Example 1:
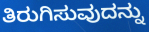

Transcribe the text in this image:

ತಿರುಗಿಸುವುದನ್ನು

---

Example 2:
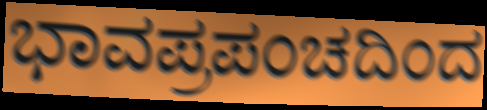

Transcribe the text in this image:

ಭಾವಪ್ರಪಂಚದಿಂದ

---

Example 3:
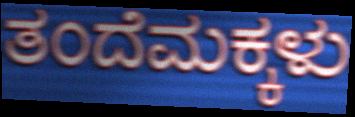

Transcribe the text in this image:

ತಂದೆಮಕ್ಕಳು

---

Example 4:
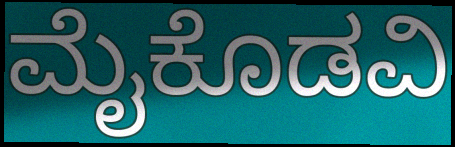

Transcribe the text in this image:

ಮೈಕೊಡವಿ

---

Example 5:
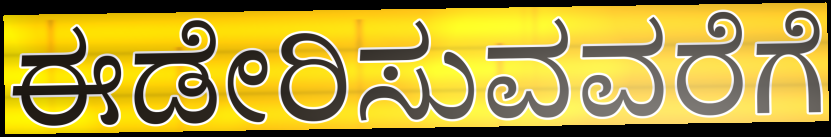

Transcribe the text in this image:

ಈಡೇರಿಸುವವರೆಗೆ